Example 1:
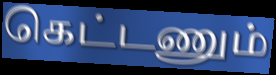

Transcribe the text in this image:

கெட்டணும்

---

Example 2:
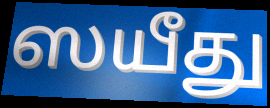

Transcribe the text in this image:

ஸயீது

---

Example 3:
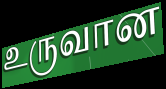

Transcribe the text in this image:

உருவான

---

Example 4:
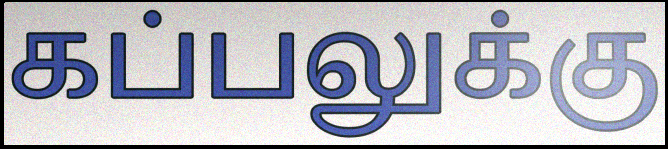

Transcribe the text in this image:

கப்பலுக்கு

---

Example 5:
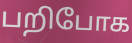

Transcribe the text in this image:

பறிபோக